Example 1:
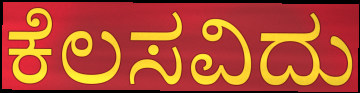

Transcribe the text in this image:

ಕೆಲಸವಿದು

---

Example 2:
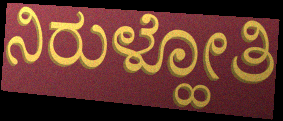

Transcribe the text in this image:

ನಿರುಳ್ಹೋತಿ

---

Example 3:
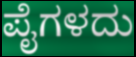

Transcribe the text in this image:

ಪೈಗಳದು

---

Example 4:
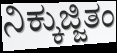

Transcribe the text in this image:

ನಿಕ್ಕುಜ್ಜಿತಂ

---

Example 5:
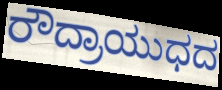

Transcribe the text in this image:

ರೌದ್ರಾಯುಧದ